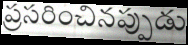
ప్రసరించినప్పుడు